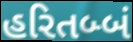
હરિતબ્બં